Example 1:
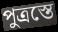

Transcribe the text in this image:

পুত্রস্তে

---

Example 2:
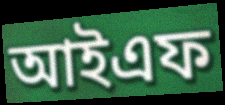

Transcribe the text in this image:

আইএফ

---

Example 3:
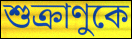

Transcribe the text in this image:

শুক্রাণুকে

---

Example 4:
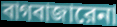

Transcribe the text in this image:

বাগবাজারেনা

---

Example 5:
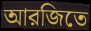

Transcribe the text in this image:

আরজিতে